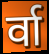
र्वा